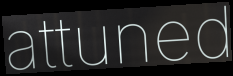
attuned